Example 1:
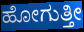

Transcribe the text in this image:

ಹೋಗುತ್ತೀ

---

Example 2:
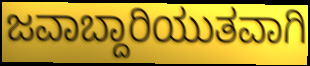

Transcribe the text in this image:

ಜವಾಬ್ದಾರಿಯುತವಾಗಿ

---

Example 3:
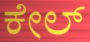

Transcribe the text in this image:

ಕೇಲ್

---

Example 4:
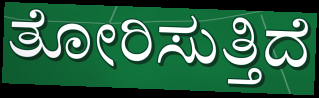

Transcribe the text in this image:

ತೋರಿಸುತ್ತಿದೆ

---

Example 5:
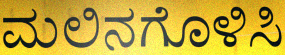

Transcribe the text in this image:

ಮಲಿನಗೊಳಿಸಿ